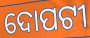
ଦୋପଟୀ